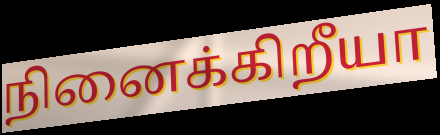
நினைக்கிறீயா